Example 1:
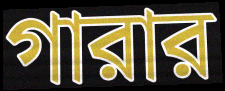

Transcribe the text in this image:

গারার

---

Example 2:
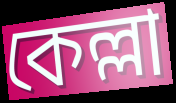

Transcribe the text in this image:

কেল্লা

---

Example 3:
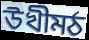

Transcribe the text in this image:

উখীমঠ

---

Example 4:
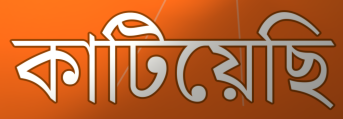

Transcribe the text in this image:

কাটিয়েছি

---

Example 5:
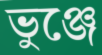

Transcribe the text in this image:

ভুঞ্জে